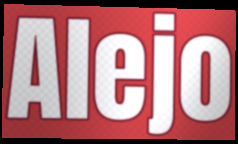
Alejo